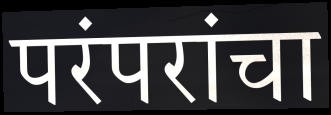
परंपरांचा